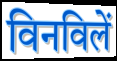
विनविलें